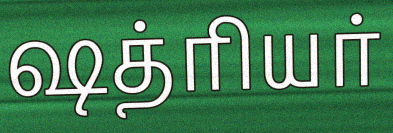
ஷத்ரியர்